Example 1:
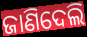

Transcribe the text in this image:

ଜାଣିଦେଲି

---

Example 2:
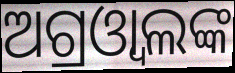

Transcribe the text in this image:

ଅଗ୍ରଓ୍ବାଲଙ୍କ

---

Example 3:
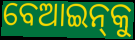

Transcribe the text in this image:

ବେଆଇନ୍‌କୁ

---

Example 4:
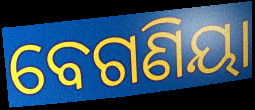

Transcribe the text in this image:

ବେଗଣିୟା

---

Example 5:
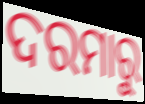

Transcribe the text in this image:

ଦରମାରୁ